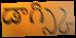
డాగ్స్కి